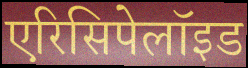
एरिसिपेलॉइड